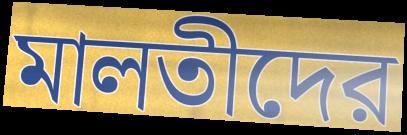
মালতীদের